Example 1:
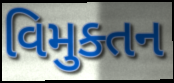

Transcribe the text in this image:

વિમુક્તન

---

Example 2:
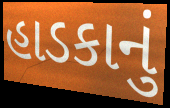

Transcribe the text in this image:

હાડકાનું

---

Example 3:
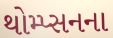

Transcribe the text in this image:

થોમ્પ્સનના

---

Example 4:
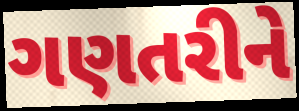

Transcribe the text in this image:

ગણતરીને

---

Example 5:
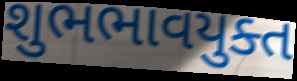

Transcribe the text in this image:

શુભભાવયુક્ત